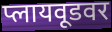
प्लायवूडवर